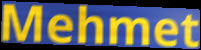
Mehmet